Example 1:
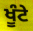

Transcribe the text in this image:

ਖੂੰਟੇ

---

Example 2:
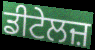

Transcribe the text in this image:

ਡੀਟੇਲਜ਼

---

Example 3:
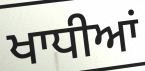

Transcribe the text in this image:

ਖਾਧੀਆਂ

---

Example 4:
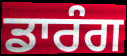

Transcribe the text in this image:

ਡਾਰੰਗ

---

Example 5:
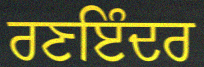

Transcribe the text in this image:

ਰਣਇੰਦਰ